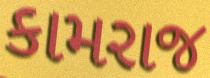
કામરાજ